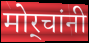
मोर्चांनी